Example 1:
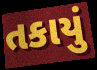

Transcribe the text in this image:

તકાયું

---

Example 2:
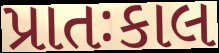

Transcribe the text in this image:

પ્રાતઃકાલ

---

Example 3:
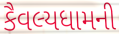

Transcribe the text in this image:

કૈવલ્યધામની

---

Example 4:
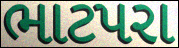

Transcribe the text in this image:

ભાટપરા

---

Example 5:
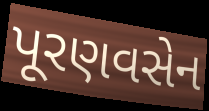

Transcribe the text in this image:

પૂરણવસેન